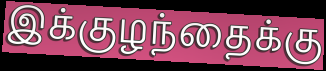
இக்குழந்தைக்கு